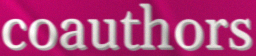
coauthors